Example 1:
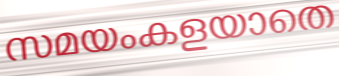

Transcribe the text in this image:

സമയംകളയാതെ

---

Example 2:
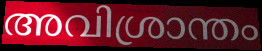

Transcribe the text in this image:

അവിശ്രാന്തം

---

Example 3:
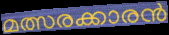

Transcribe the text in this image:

മത്സരക്കാരൻ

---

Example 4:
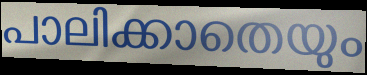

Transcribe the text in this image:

പാലിക്കാതെയും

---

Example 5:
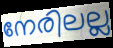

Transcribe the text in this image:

നേരിലല്ല